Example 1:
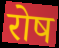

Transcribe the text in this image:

रोष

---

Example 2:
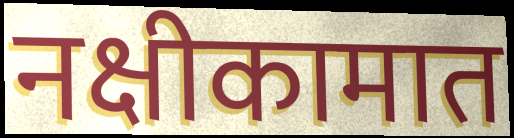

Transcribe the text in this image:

नक्षीकामात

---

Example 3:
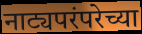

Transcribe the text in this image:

नाट्यपरंपरेच्या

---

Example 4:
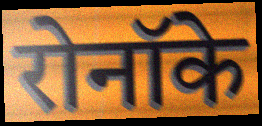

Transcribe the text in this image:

रोनॉके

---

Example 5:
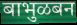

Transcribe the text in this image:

बाभुळबन